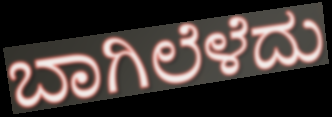
ಬಾಗಿಲೆಳೆದು